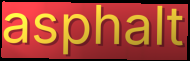
asphalt